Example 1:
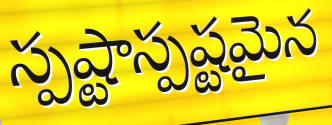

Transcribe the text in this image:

స్పష్టాస్పష్టమైన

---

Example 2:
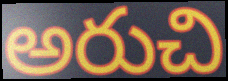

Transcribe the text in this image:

అరుచి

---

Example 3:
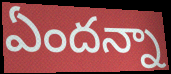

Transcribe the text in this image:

ఏందన్నా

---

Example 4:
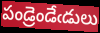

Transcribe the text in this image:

పండ్రెండేఁడులు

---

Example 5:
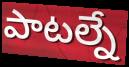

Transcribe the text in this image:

పాటల్నే